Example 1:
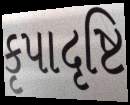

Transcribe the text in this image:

કૃપાદૃષ્ટિ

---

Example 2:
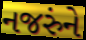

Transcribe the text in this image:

નજરુંને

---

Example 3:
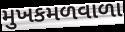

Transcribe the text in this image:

મુખકમળવાળા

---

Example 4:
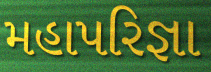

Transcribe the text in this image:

મહાપરિજ્ઞા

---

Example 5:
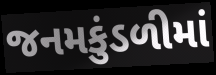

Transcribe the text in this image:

જનમકુંડળીમાં